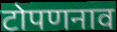
टोपणनाव